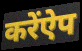
करेंऐप